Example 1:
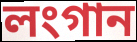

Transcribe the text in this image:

লংগান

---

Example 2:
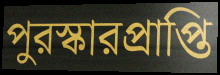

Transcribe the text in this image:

পুরস্কারপ্রাপ্তি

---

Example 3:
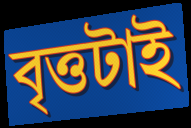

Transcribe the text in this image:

বৃত্তটাই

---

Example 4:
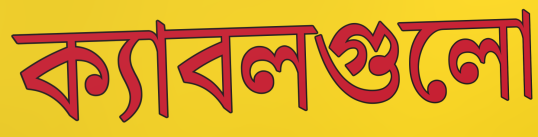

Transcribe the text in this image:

ক্যাবলগুলো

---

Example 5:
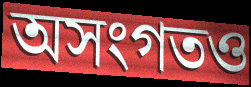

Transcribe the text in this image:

অসংগতও